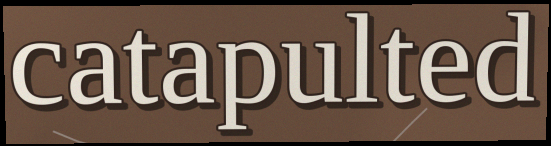
catapulted